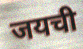
जयची